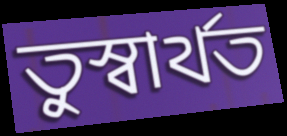
তুস্বাৰ্থত